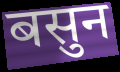
बसुन